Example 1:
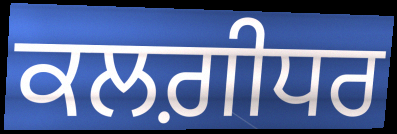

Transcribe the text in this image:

ਕਲਗ਼ੀਧਰ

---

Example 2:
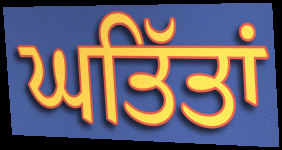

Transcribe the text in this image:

ਘਤਿੱਤਾਂ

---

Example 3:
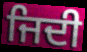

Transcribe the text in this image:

ਜਿਦੀ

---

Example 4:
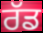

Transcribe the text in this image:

ਰੱਡ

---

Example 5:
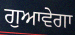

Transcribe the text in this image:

ਗੁਆਵੇਗਾ